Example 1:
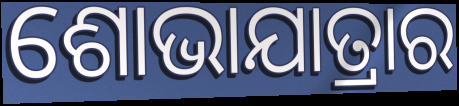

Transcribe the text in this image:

ଶୋଭାଯାତ୍ରାର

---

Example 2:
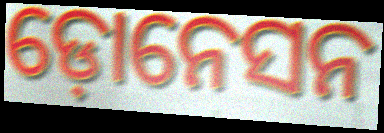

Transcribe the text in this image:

ଡ଼ୋନେସନ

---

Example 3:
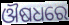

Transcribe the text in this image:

ଔଷଧରେ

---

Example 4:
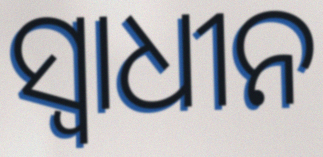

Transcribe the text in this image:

ସ୍ୱାଧୀନ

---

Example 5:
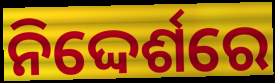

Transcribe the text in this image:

ନିଦ୍ଦେର୍ଶରେ